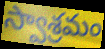
స్వాశ్రమం